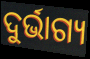
ଦୁର୍ଭାଗ୍ୟ